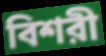
বিশরী